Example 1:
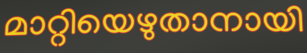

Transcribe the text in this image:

മാറ്റിയെഴുതാനായി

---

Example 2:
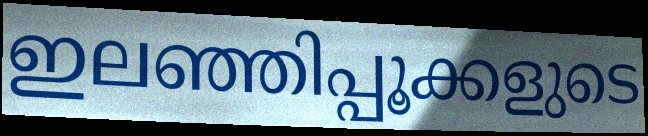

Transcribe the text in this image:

ഇലഞ്ഞിപ്പൂക്കളുടെ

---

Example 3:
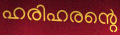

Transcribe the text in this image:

ഹരിഹരന്റെ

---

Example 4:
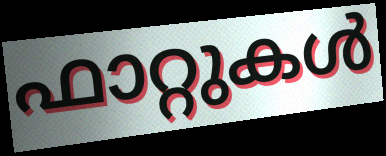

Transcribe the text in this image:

ഫാറ്റുകൾ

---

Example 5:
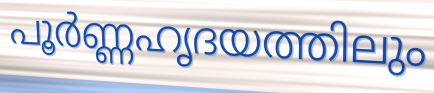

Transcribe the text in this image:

പൂർണ്ണഹൃദയത്തിലും